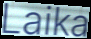
Laika